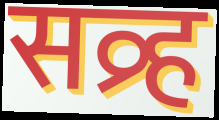
सव्र्ह